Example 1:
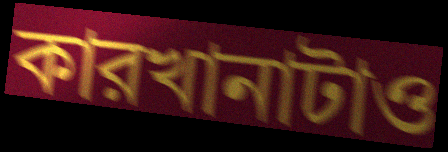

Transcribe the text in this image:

কারখানাটাও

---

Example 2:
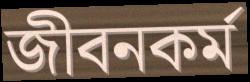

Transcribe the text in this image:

জীবনকর্ম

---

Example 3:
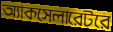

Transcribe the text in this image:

অ্যাকসেলারেটরে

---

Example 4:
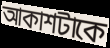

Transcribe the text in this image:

আকাশটাকে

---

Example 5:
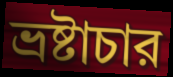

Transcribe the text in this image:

ভ্রষ্টাচার